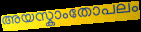
അയസ്കാംതോപലം